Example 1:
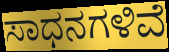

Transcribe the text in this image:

ಸಾಧನಗಳಿವೆ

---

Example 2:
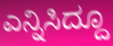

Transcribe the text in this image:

ಎನ್ನಿಸಿದ್ದೂ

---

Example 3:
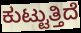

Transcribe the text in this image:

ಕುಟ್ಟುತ್ತಿದೆ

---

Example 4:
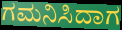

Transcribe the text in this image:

ಗಮನಿಸಿದಾಗ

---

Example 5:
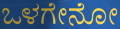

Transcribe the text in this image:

ಒಳಗೇನೋ